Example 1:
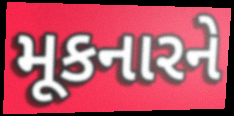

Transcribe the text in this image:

મૂકનારને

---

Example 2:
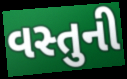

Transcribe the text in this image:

વસ્તુની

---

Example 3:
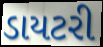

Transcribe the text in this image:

ડાયટરી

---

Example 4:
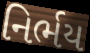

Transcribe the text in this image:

નિર્ભય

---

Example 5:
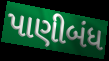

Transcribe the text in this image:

પાણીબંધ